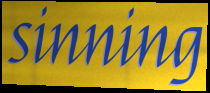
sinning